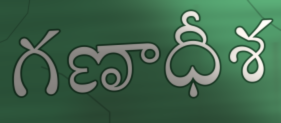
గణాధీశ